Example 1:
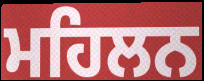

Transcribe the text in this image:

ਮਹਿਲਨ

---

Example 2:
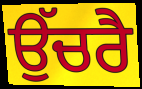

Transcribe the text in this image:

ਉੱਚਰੈ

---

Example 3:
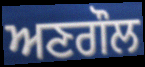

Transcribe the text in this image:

ਅਣਗੌਲ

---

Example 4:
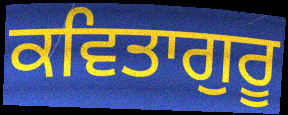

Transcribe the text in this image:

ਕਵਿਤਾਗੁਰੂ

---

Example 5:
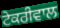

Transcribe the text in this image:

ਟੇਕਰੀਵਾਲ